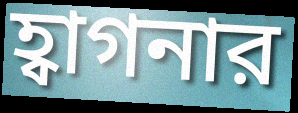
হ্বাগনার